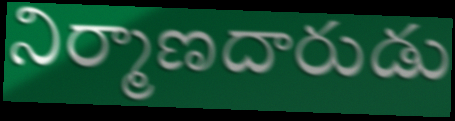
నిర్మాణదారుడు